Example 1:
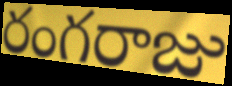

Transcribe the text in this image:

రంగరాజు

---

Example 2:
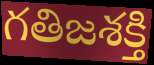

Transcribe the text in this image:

గతిజశక్తి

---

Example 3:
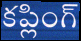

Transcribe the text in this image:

కప్లింగ్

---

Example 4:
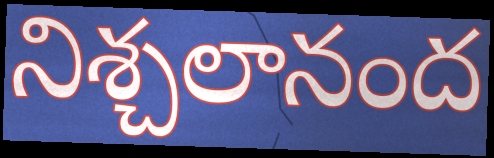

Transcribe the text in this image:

నిశ్చలానంద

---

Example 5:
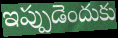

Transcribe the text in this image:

ఇప్పుడెందుకు